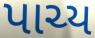
પાચ્ય